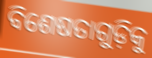
ବିଶେଷତାଗୁଡ଼ିକୁ